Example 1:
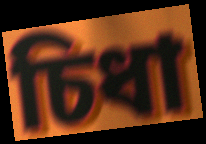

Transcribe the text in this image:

চিধা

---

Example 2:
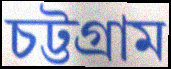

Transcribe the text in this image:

চট্টগ্ৰাম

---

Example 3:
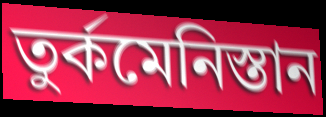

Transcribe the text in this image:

তুৰ্কমেনিস্তান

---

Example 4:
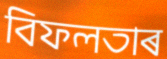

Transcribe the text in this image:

বিফলতাৰ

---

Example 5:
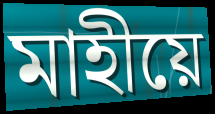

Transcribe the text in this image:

মাহীয়ে